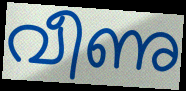
വീണു